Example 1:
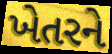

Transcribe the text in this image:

ખેતરને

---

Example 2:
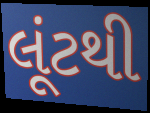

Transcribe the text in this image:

લૂંટથી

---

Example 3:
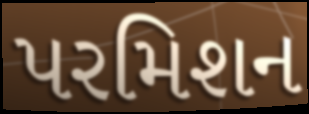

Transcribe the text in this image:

પરમિશન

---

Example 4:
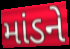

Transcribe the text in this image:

માંડને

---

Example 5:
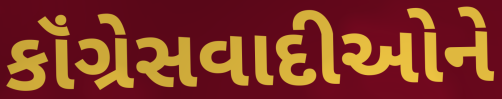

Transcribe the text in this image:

કૉંગ્રેસવાદીઓને